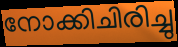
നോക്കിചിരിച്ചു